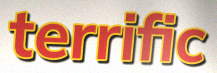
terrific